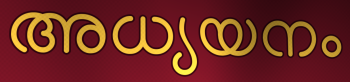
അധ്യയനം